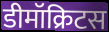
डीमॉक्रिटस